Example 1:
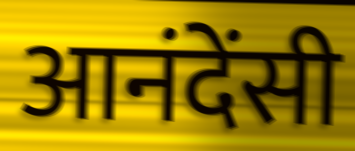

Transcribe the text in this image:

आनंदेंसी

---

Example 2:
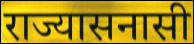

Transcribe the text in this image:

राज्यासनासी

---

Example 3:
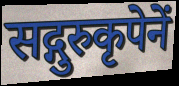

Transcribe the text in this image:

सद्गुरुकृपेनें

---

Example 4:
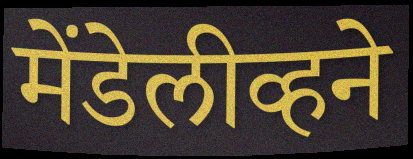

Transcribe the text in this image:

मेंडेलीव्हने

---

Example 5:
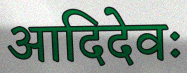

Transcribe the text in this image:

आदिदेवः